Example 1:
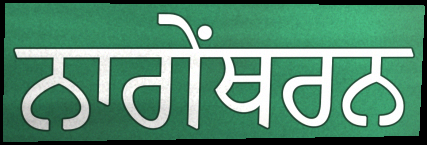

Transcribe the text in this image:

ਨਾਗੇਂਥਰਨ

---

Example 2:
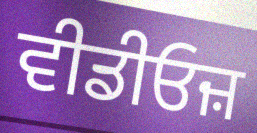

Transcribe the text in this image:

ਵੀਡੀਓਜ਼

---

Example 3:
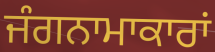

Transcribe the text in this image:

ਜੰਗਨਾਮਾਕਾਰਾਂ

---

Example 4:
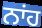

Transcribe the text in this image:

ਨਾਂਹ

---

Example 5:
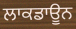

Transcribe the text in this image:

ਲਾਕਡਾਊਨ